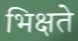
भिक्षते